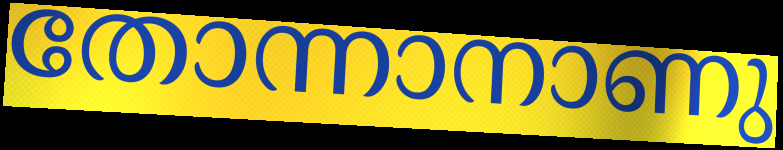
തോന്നാനാണു